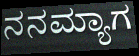
ನನಮ್ಯಾಗ